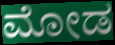
ಮೋಡ